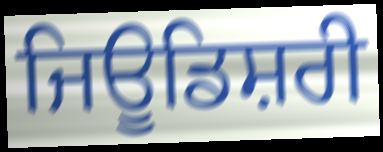
ਜਿਊਡਿਸ਼ਰੀ